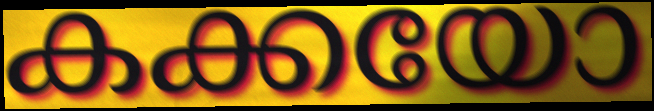
കക്കയോ